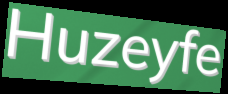
Huzeyfe